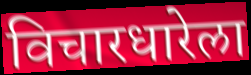
विचारधारेला